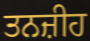
ਤਨਜ਼ੀਹ